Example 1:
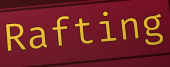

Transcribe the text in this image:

Rafting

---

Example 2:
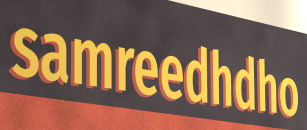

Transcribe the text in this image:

samreedhdho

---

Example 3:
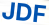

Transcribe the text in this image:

JDF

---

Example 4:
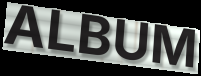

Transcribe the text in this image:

ALBUM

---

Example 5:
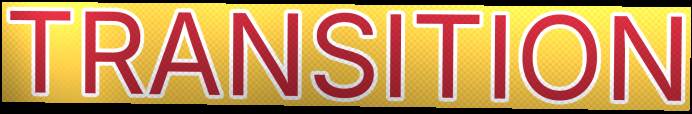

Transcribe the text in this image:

TRANSITION